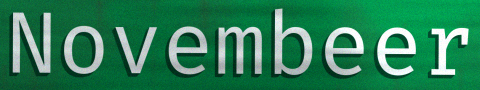
Novembeer